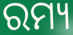
ରମ୍ୟ